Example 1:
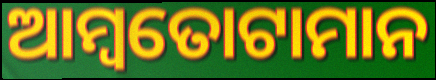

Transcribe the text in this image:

ଆମ୍ବତୋଟାମାନ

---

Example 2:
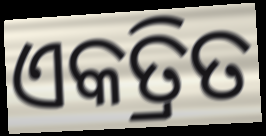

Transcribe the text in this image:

ଏକତ୍ରିତ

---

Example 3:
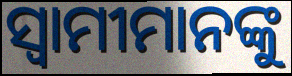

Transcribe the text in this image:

ସ୍ବାମୀମାନଙ୍କୁ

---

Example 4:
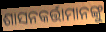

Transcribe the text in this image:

ଶାସନକର୍ତ୍ତାମାନଙ୍କୁ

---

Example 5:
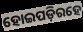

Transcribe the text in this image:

ହୋଇପଡ଼ିରହେ